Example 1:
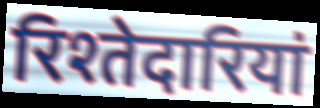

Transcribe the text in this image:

रिश्तेदारियां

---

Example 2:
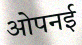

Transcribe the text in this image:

ओपनई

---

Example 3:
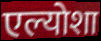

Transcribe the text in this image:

एल्योशा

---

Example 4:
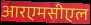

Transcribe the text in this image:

आरएमसीएल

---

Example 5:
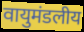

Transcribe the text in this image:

वायुमंडलीय